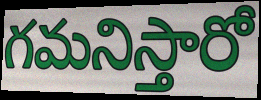
గమనిస్తారో